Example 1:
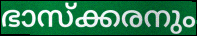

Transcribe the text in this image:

ഭാസ്ക്കരനും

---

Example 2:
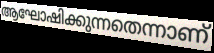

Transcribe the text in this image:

ആഘോഷിക്കുന്നതെന്നാണ്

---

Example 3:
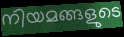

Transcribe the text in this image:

നിയമങ്ങളുടെ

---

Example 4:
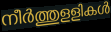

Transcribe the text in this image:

നീർത്തുളളികൾ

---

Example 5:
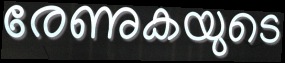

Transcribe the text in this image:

രേണുകയുടെ